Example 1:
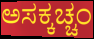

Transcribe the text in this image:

ಅಸಕ್ಕಚ್ಚಂ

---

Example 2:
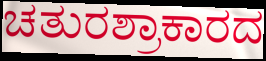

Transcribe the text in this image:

ಚತುರಶ್ರಾಕಾರದ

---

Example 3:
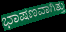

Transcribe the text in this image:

ಭಾಷಣವಾಗಿತ್ತು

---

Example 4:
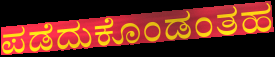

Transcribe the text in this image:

ಪಡೆದುಕೊಂಡಂತಹ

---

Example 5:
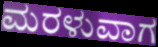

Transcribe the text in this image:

ಮರಳುವಾಗ